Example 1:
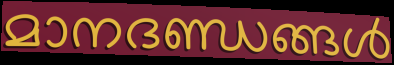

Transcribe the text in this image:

മാനദണ്ഡങ്ങൾ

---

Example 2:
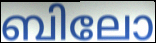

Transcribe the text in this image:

ബിലോ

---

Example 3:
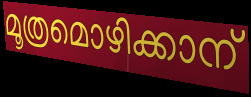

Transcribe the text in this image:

മൂത്രമൊഴിക്കാന്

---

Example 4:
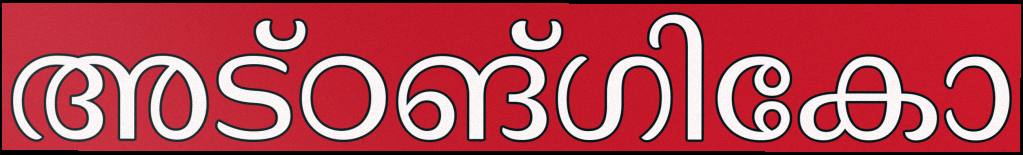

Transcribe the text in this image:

അട്ഠങ്ഗികോ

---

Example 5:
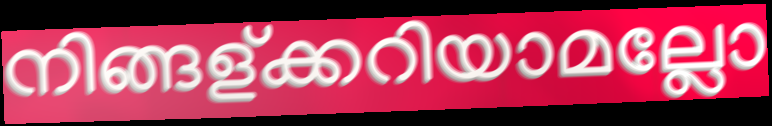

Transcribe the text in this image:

നിങ്ങള്ക്കറിയാമല്ലോ